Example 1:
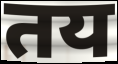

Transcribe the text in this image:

तय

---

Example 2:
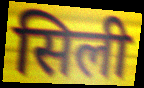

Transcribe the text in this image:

सिली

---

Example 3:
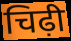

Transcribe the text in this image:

चिढ़ी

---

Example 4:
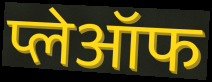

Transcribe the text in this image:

प्लेऑफ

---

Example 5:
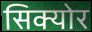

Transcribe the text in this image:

सिक्योर